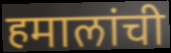
हमालांची